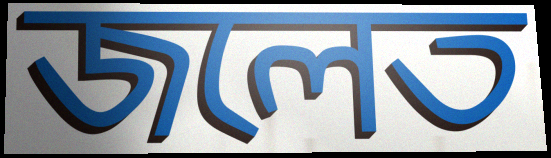
জলেত